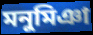
মনুমিঞা